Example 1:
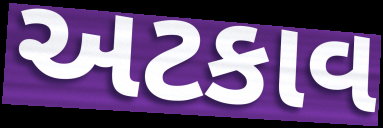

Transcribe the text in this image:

અટકાવ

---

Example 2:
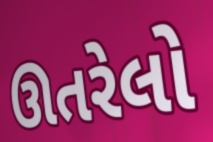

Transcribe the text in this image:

ઊતરેલો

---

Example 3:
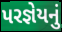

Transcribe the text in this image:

પરજ્ઞેયનું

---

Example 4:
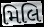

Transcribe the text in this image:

મિલિ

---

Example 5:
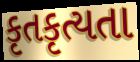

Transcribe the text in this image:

કૃતકૃત્યતા